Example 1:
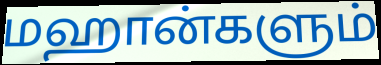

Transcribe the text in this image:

மஹான்களும்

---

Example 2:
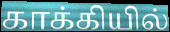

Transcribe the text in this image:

காக்கியில்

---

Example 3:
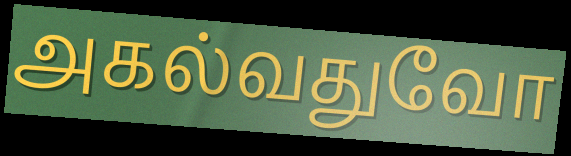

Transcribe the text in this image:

அகல்வதுவோ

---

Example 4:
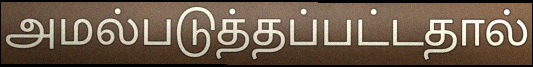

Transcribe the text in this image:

அமல்படுத்தப்பட்டதால்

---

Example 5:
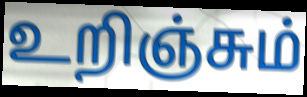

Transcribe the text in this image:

உறிஞ்சும்